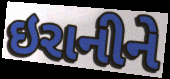
ઇરાનીને